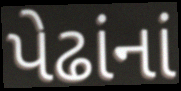
પેઢાંનાં